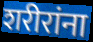
शरीरांना